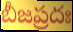
బీజప్రదః